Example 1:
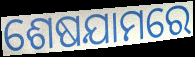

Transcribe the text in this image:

ଶେଷଯାମରେ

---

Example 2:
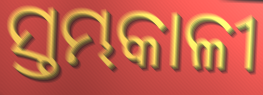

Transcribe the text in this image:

ସ୍ତମ୍ଭକାଳୀ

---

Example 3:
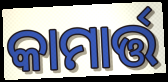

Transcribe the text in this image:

କାମାର୍ତ୍ତ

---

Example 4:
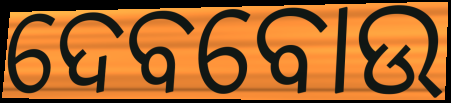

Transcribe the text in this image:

ଦେବବୋଉ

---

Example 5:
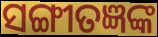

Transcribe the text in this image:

ସଙ୍ଗୀତଜ୍ଞଙ୍କ